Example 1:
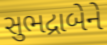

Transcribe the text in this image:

સુભદ્રાબેને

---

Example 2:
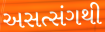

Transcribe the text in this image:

અસત્સંગથી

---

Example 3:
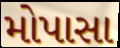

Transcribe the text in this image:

મોપાસા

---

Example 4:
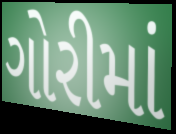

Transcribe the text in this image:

ગોરીમાં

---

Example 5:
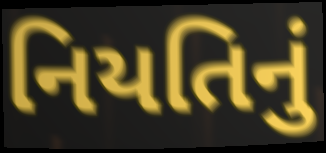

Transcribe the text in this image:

નિયતિનું